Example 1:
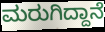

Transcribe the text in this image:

ಮರುಗಿದ್ದಾನೆ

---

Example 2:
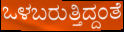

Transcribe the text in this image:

ಒಳಬರುತ್ತಿದ್ದಂತೆ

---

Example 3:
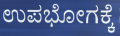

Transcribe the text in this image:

ಉಪಭೋಗಕ್ಕೆ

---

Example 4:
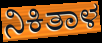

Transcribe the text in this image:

ನಿಕಿತಾಳ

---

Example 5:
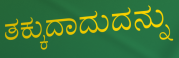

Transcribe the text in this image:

ತಕ್ಕುದಾದುದನ್ನು